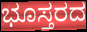
ಭೂಸ್ತರದ